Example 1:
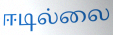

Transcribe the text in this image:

ஈடில்லை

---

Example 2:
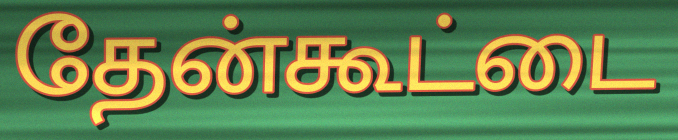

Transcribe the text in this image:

தேன்கூட்டை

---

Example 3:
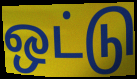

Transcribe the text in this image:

ஒட்டு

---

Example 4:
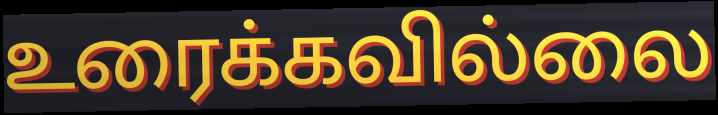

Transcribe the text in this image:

உரைக்கவில்லை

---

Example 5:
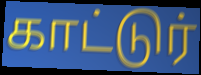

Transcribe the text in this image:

காட்டுர்